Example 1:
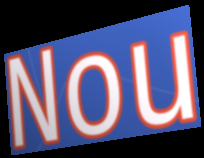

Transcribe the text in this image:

Nou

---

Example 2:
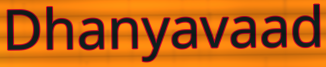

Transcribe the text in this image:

Dhanyavaad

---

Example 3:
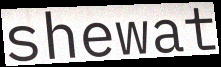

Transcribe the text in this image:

shewat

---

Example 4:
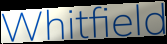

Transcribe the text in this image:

Whitfield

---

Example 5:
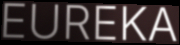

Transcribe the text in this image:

EUREKA